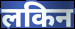
लकिन